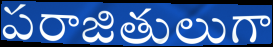
పరాజితులుగా